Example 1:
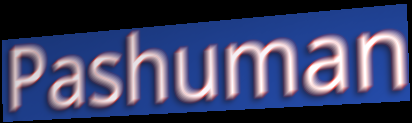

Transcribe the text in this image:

Pashuman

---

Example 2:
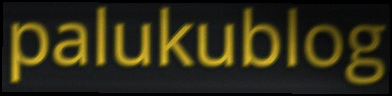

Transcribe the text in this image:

palukublog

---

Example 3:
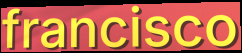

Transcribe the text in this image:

francisco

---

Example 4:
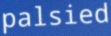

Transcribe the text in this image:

palsied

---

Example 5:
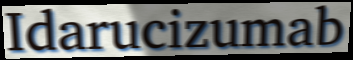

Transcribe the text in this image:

Idarucizumab